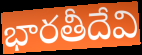
భారతీదేవి